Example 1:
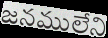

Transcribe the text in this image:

జనములేని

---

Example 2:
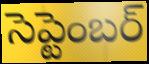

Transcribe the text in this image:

సెప్టెంబర్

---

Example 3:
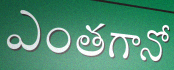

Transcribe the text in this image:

ఎంతగానో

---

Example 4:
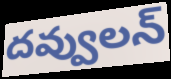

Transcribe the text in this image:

దవ్వులన్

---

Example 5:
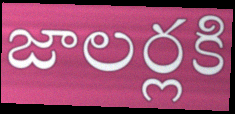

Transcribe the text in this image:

జాలర్లకి